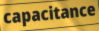
capacitance